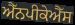
ਐੱਨਪੀਕੇਐੱਸ